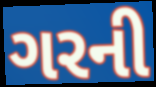
ગરની